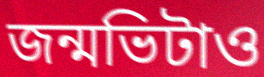
জন্মভিটাও